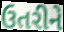
ઉતરીને